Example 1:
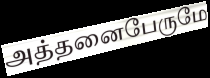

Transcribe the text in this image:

அத்தனைபேருமே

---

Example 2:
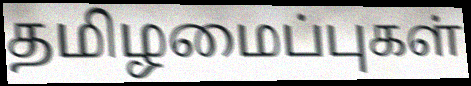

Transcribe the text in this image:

தமிழமைப்புகள்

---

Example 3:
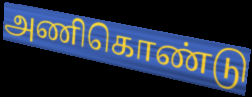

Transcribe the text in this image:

அணிகொண்டு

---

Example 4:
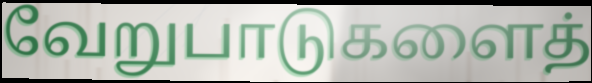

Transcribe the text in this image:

வேறுபாடுகளைத்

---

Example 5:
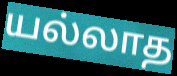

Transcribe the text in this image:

யல்லாத